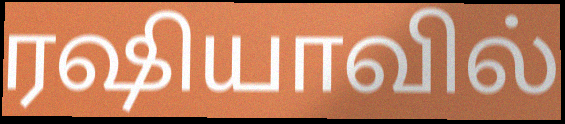
ரஷியாவில்